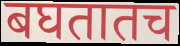
बघतातच